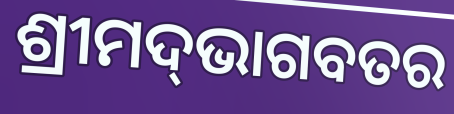
ଶ୍ରୀମଦ୍‌ଭାଗବତର